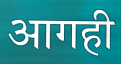
आगही